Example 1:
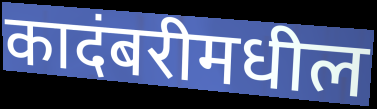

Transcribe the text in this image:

कादंबरीमधील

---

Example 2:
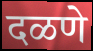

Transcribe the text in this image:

दळणे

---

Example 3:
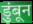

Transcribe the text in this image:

डुंबून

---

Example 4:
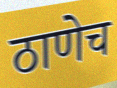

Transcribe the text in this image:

ठाणेच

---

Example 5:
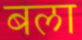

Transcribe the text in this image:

बला